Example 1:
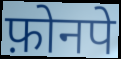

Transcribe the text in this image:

फ़ोनपे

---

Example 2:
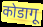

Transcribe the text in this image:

कोडागू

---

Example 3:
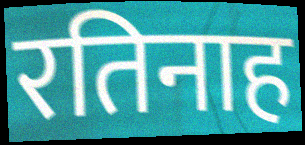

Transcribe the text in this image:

रतिनाह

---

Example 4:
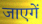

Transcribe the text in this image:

जाएगें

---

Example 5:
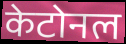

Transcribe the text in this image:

केटोनल